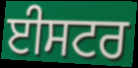
ਈਸਟਰ